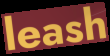
leash